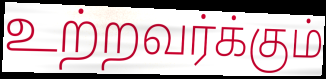
உற்றவர்க்கும்